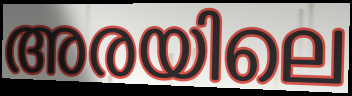
അരയിലെ